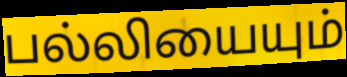
பல்லியையும்